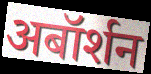
अबॉर्शन